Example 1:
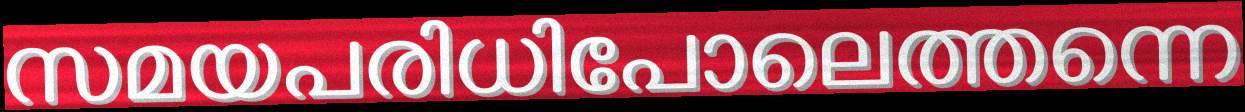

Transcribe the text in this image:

സമയപരിധിപോലെത്തന്നെ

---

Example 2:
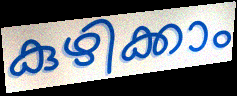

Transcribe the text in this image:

കുഴിക്കാം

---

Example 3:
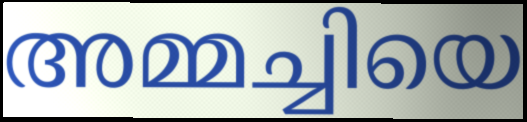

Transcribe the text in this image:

അമ്മച്ചിയെ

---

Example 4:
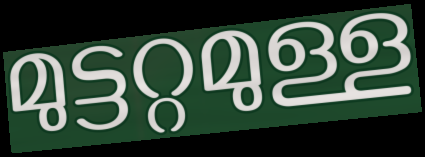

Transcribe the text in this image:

മുട്ടറ്റമുള്ള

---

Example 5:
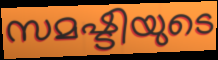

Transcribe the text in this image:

സമഷ്ടിയുടെ